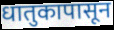
धातुकापासून